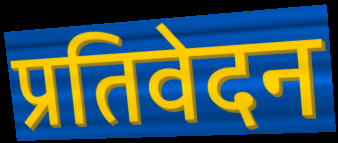
प्रतिवेदन